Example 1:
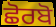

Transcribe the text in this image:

ਛੋਰਬੋ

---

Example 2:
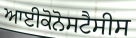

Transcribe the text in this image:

ਆਈਕੋਨੋਸਟੈਸੀਸ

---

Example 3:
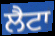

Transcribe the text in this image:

ਲੈਟਾ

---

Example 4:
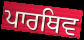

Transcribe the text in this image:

ਪਾਰਥਿਵ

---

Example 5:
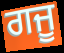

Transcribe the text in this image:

ਗਜੂ